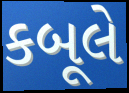
કબૂલે